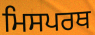
ਮਿਸਪਰਥ